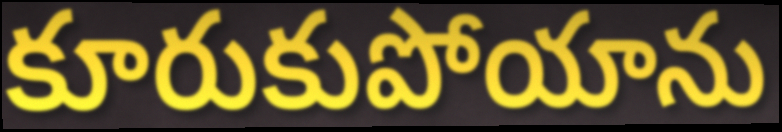
కూరుకుపోయాను